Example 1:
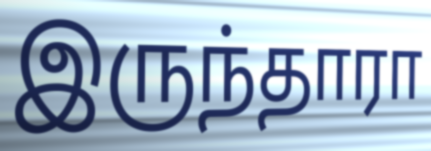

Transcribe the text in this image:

இருந்தாரா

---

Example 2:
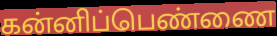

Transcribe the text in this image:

கன்னிப்பெண்ணை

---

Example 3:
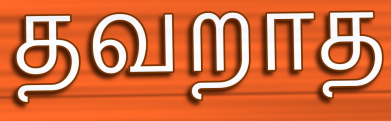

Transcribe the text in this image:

தவறாத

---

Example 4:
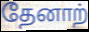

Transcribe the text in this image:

தேனாற்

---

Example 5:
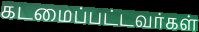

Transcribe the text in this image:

கடமைப்பட்டவர்கள்